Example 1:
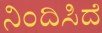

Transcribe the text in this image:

ನಿಂದಿಸಿದೆ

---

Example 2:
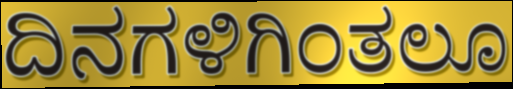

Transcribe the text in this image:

ದಿನಗಳಿಗಿಂತಲೂ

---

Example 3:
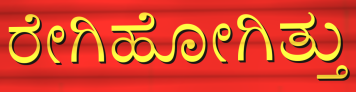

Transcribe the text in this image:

ರೇಗಿಹೋಗಿತ್ತು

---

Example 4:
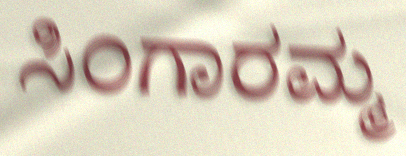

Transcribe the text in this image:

ಸಿಂಗಾರಮ್ಮ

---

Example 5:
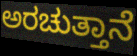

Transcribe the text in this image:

ಅರಚುತ್ತಾನೆ